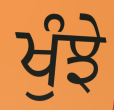
ਖੁੰਝੇ